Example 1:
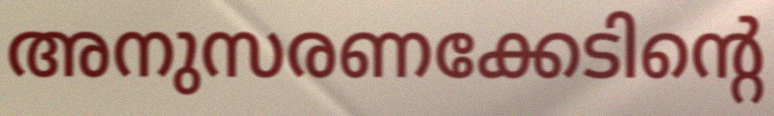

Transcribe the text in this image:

അനുസരണക്കേടിന്റെ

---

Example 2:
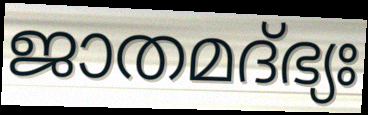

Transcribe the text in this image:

ജാതമദ്ഭ്യഃ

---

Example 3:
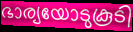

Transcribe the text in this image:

ഭാര്യയോടുകൂടി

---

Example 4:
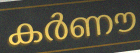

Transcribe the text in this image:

കർണൗ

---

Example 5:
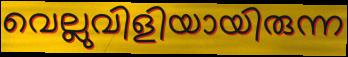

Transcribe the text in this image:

വെല്ലുവിളിയായിരുന്ന